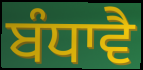
ਬੰਧਾਵੈ